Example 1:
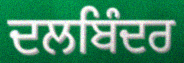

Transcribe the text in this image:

ਦਲਬਿੰਦਰ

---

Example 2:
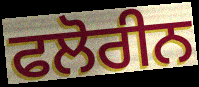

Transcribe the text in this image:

ਫਲੋਰੀਨ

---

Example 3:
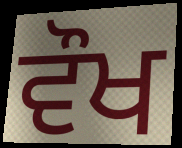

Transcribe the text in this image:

ਵੌਖ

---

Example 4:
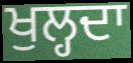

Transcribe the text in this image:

ਖੁਲ੍ਹਦਾ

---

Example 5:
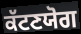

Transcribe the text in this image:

ਕੱਟਣਯੋਗ